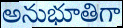
అనుభూతిగా